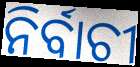
ନିର୍ବାଚୀ